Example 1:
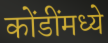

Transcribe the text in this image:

कोंडींमध्ये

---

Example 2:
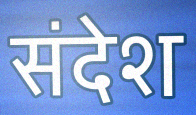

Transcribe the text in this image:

संदेश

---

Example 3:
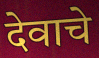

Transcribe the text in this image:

देवाचे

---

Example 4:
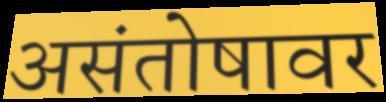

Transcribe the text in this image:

असंतोषावर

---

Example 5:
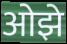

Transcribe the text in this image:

ओझे